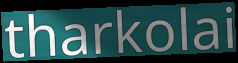
tharkolai